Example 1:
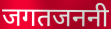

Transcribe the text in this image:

जगतजननी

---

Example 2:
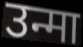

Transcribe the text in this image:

उन्मा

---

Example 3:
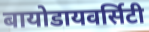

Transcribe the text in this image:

बायोडायवर्सिटी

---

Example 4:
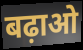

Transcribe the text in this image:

बढ़ाओ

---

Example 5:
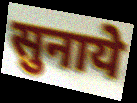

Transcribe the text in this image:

सुनाये